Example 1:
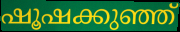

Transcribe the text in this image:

ഷൂഷക്കുഞ്ഞ്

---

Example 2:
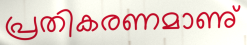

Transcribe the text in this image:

പ്രതികരണമാണു്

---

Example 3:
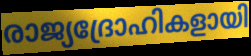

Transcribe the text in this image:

രാജ്യദ്രോഹികളായി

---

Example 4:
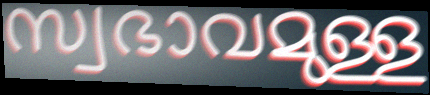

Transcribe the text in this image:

സ്വഭാവമുള്ള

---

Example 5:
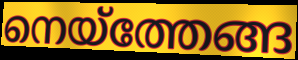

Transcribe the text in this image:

നെയ്ത്തേങ്ങ